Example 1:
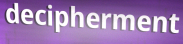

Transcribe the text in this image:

decipherment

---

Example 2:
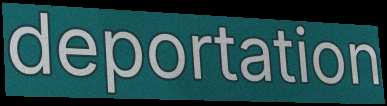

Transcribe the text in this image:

deportation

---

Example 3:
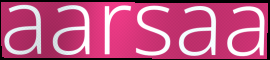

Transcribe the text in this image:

aarsaa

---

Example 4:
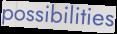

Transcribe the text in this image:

possibilities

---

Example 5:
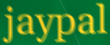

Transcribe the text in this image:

jaypal